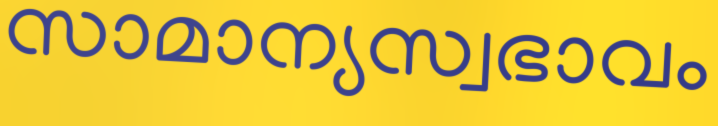
സാമാന്യസ്വഭാവം